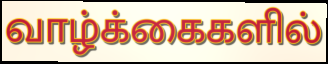
வாழ்க்கைகளில்